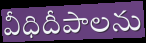
వీధిదీపాలను